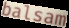
balsam